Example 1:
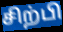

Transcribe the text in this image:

சிற்பி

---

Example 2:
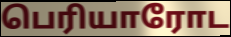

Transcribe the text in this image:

பெரியாரோட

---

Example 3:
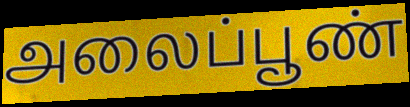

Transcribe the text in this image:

அலைப்பூண்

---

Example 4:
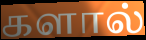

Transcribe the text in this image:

களால்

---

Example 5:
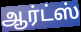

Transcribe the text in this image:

ஆர்ட்ஸ்